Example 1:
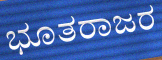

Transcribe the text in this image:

ಭೂತರಾಜರ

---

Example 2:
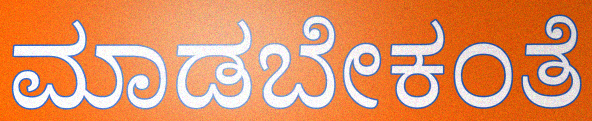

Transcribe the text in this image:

ಮಾಡಬೇಕಂತೆ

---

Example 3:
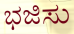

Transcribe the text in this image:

ಭಜಿಸು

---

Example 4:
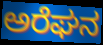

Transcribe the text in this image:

ಅರೆಘನ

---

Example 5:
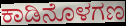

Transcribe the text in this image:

ಕಾಡಿನೊಳಗಣ